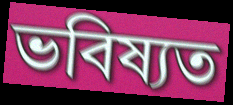
ভবিষ্যত